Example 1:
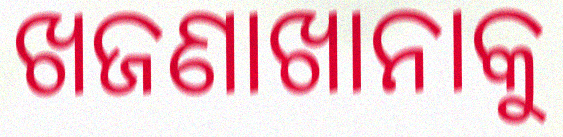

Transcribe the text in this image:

ଖଜଣାଖାନାକୁ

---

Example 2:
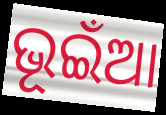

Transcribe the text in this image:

ଭୂଇଁଆ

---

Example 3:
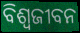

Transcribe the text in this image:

ବିଶ୍ଵଜୀବନ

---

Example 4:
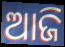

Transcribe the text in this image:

ଆଜି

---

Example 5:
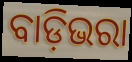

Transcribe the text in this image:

ବାଡ଼ିଭରା